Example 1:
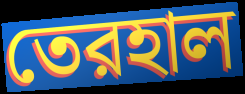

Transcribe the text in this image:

তেরহাল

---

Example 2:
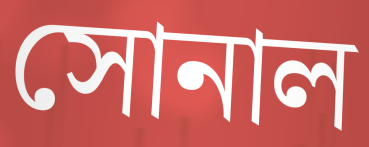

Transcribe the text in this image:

সোনাল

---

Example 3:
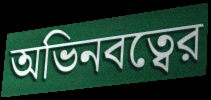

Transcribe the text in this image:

অভিনবত্বের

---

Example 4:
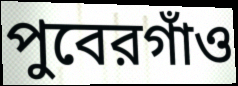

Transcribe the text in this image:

পুবেরগাঁও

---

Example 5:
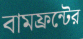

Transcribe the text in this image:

বামফ্রন্টের